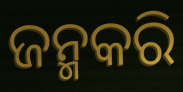
ଜନ୍ମକରି